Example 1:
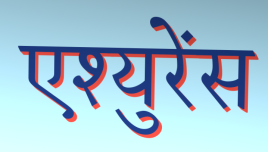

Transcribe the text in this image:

एश्युरेंस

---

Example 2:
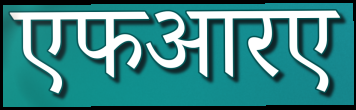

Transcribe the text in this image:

एफआरए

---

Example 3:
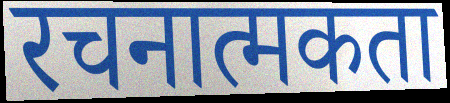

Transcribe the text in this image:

रचनात्मकता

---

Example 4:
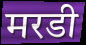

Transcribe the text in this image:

मरडी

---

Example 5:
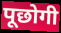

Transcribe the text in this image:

पूछोगी